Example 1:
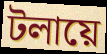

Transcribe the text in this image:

টলায়ে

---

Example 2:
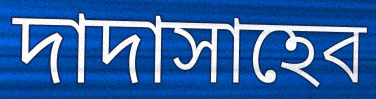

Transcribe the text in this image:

দাদাসাহেব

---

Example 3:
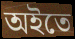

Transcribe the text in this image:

অইতে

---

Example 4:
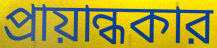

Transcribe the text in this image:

প্রায়ান্ধকার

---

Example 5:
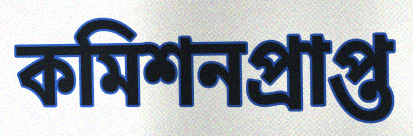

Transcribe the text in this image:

কমিশনপ্রাপ্ত